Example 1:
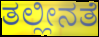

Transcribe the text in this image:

ತಲ್ಲೀನತೆ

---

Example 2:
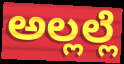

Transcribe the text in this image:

ಅಲ್ಲಲ್ಲೆ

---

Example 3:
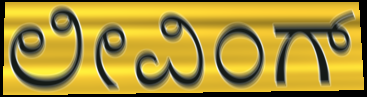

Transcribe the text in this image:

ಲೀವಿಂಗ್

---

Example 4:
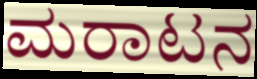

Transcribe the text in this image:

ಮರಾಟನ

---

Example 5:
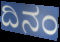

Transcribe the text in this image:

ದಿನಂ